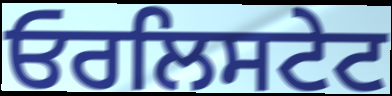
ਓਰਲਿਸਟੇਟ